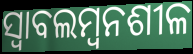
ସ୍ୱାବଲମ୍ୱନଶୀଳ